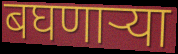
बघणाऱ्या